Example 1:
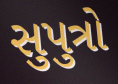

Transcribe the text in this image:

સુપુત્રો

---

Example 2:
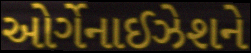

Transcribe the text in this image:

ઓર્ગેનાઈઝેશને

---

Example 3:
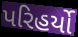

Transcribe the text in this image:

પરિહર્યો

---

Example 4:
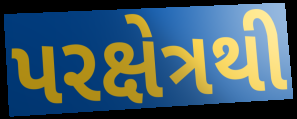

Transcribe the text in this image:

પરક્ષેત્રથી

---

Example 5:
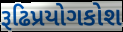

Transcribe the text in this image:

રૂઢિપ્રયોગકોશ